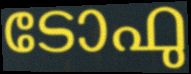
ടോഫു